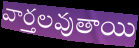
వార్తలవుతాయి